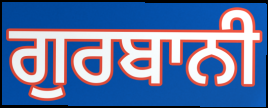
ਗੁਰਬਾਨੀ